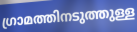
ഗ്രാമത്തിനടുത്തുള്ള